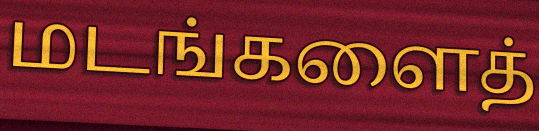
மடங்களைத்